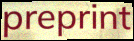
preprint